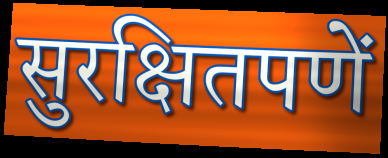
सुरक्षितपणें